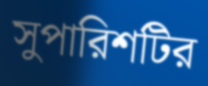
সুপারিশটির